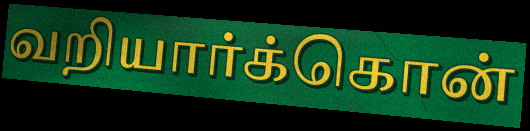
வறியார்க்கொன்